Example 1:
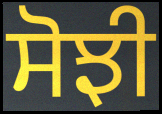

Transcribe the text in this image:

ਸੋਝੀ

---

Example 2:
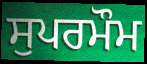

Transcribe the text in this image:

ਸੁਪਰਮੌਮ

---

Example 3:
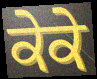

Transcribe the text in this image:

ਕੇਕੇ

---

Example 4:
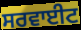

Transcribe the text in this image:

ਸਰਵਾਈਟ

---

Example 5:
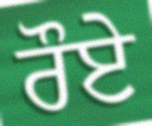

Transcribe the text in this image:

ਰੌਏ